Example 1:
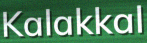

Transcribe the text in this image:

Kalakkal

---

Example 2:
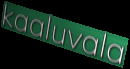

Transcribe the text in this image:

kaaluvala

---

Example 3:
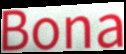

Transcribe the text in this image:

Bona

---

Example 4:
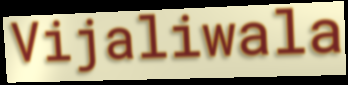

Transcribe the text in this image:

Vijaliwala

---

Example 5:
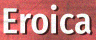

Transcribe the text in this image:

Eroica